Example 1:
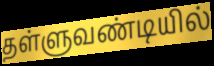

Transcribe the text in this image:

தள்ளுவண்டியில்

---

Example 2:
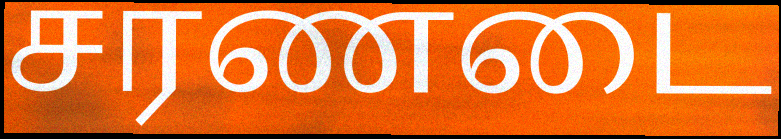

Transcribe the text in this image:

சரணடை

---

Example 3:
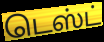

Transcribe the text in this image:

டெஸ்ட்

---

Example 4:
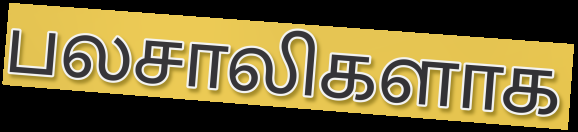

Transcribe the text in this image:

பலசாலிகளாக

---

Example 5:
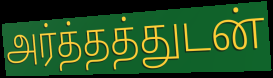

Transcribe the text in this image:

அர்த்தத்துடன்